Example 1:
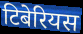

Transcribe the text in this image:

टिबेरियस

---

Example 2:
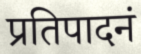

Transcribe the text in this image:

प्रतिपादनं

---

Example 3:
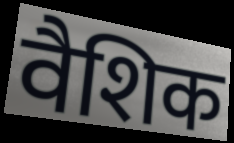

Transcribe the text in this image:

वैशिक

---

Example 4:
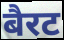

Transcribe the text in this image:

बैरट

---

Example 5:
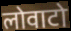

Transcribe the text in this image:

लोवाटो